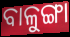
ବାଳୁଙ୍ଗା